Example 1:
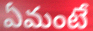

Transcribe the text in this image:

ఏమంటే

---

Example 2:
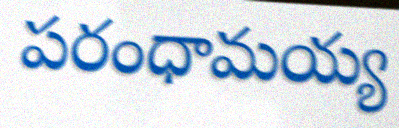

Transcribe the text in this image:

పరంధామయ్య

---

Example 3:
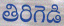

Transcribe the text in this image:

తిరిగెడి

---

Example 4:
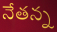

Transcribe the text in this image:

నేతన్న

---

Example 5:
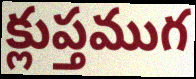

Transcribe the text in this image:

క్లుప్తముగ